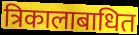
त्रिकालाबाधित